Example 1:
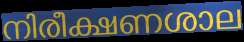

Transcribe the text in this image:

നിരീക്ഷണശാല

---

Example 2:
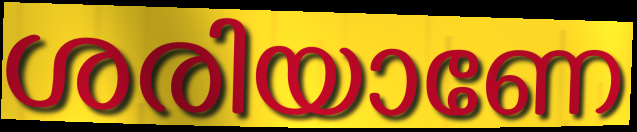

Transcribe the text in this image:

ശരിയാണേ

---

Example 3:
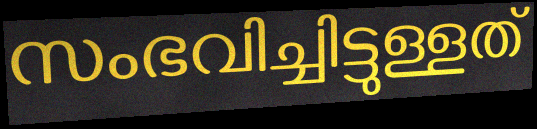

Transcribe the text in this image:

സംഭവിച്ചിട്ടുള്ളത്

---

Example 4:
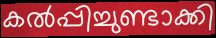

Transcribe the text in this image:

കൽപ്പിച്ചുണ്ടാക്കി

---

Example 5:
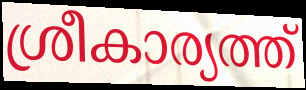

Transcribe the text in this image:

ശ്രീകാര്യത്ത്